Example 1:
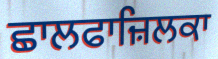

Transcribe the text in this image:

ਛਾਲਫਾਜ਼ਿਲਕਾ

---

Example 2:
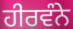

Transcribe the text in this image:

ਹੀਰਵੰਨੇ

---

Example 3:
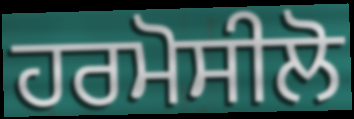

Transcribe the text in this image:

ਹਰਮੋਸੀਲੋ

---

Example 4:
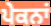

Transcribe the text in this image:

ਪੇਕਨਾਂ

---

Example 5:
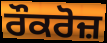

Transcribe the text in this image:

ਰੌਕਰੋਜ਼